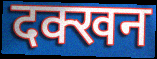
दक्खन